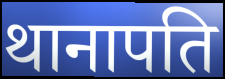
थानापति